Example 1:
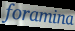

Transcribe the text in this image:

foramina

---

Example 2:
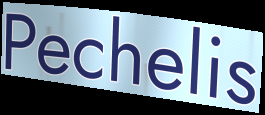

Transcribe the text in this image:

Pechelis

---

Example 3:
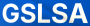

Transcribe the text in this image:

GSLSA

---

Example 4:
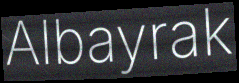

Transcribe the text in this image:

Albayrak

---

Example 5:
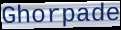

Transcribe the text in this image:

Ghorpade